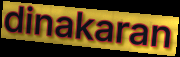
dinakaran